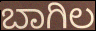
ಬಾಗಿಲ